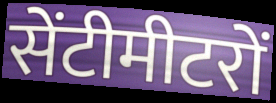
सेंटीमीटरों